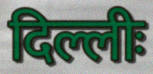
दिल्लीः